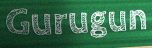
Gurugun